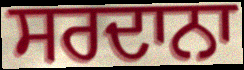
ਸਰਦਾਨਾ